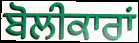
ਬੋਲੀਕਾਰਾਂ